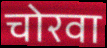
चोरवा